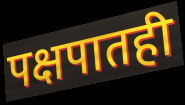
पक्षपातही